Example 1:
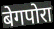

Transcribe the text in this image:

बेगपोरा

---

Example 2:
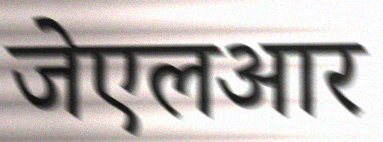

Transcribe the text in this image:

जेएलआर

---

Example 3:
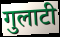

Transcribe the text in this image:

गुलाटी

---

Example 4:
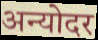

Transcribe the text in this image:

अन्योदर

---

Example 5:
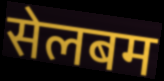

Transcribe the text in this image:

सेलबम